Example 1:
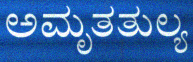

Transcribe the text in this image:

ಅಮೃತತುಲ್ಯ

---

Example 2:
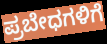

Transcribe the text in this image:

ಪ್ರಬೇಧಗಳಿಗೆ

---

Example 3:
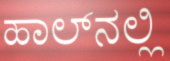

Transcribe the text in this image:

ಹಾಲ್‌ನಲ್ಲಿ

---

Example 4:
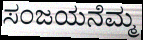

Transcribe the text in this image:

ಸಂಜಯನೆಮ್ಮ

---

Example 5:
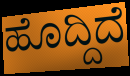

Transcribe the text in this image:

ಹೊದ್ದಿದೆ